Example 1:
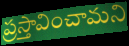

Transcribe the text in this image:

ప్రస్తావించామని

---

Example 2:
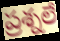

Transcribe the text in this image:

ప్రశ్నలే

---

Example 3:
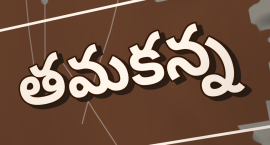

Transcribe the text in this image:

తమకన్న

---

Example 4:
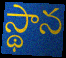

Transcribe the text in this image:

స్థాన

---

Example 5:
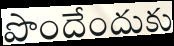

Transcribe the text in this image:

పొందేందుకు